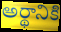
అర్థానికి